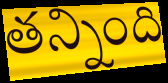
తన్నింది